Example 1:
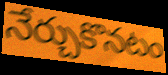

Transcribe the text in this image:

నేర్చుకొనటం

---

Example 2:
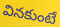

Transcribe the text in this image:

వినకుంటే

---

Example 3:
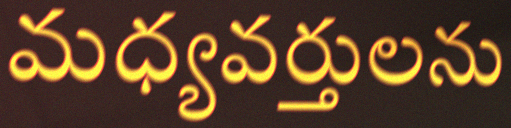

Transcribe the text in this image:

మధ్యవర్తులను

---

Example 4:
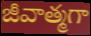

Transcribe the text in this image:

జీవాత్మగా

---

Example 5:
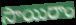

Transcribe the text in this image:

సాయిరాం